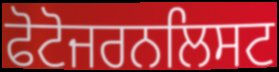
ਫੋਟੋਜਰਨਲਿਸਟ